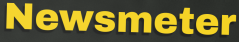
Newsmeter